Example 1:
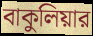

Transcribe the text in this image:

বাকুলিয়ার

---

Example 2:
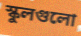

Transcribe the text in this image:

স্কুলগুলো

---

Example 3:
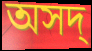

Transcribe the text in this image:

অসদ্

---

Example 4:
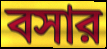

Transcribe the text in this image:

বসার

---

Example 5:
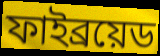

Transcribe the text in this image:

ফাইব্রয়েড